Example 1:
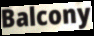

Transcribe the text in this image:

Balcony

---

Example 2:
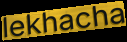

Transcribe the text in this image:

lekhacha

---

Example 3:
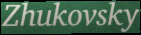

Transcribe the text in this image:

Zhukovsky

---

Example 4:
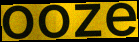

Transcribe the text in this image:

ooze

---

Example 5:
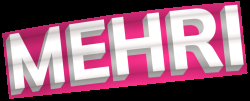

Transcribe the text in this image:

MEHRI